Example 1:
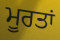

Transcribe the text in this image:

ਮੂਰਤਾਂ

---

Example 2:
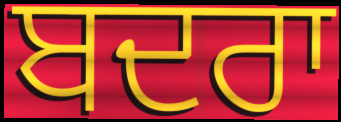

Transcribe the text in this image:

ਬਦਰਾ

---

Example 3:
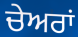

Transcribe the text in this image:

ਚੇਅਰਾਂ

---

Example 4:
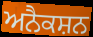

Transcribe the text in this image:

ਅਨੈਕਸ਼ਨ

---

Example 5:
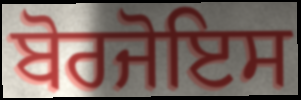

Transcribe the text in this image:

ਬੋਰਜੋਇਸ